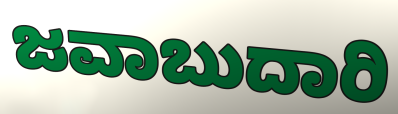
ಜವಾಬುದಾರಿ